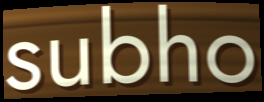
subho